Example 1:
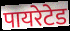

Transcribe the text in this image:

पायरेटेड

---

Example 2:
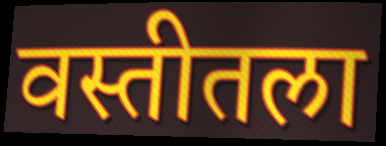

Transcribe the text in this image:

वस्तीतला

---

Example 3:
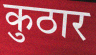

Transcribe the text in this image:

कुठार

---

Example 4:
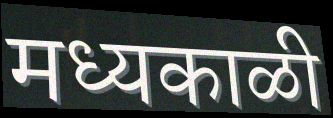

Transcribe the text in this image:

मध्यकाळी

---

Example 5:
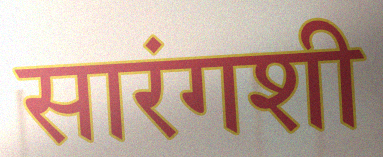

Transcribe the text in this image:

सारंगशी